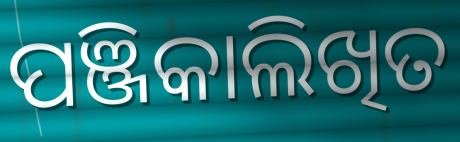
ପଞ୍ଜିକାଲିଖିତ